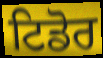
ਟਿਡੋਰ